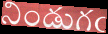
నిండుగఁ